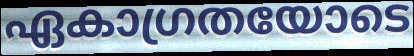
ഏകാഗ്രതയോടെ